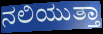
ನಲಿಯುತ್ತಾ